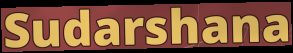
Sudarshana